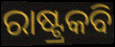
ରାଷ୍ଟ୍ରକବି